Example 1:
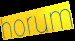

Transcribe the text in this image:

horum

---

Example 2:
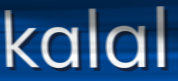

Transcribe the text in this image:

kalal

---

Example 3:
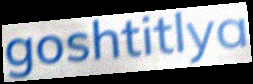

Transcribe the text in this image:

goshtitlya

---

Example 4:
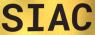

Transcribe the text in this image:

SIAC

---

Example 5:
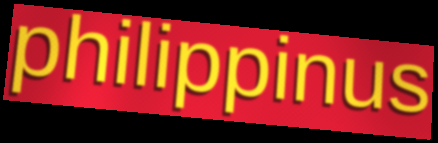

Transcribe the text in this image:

philippinus